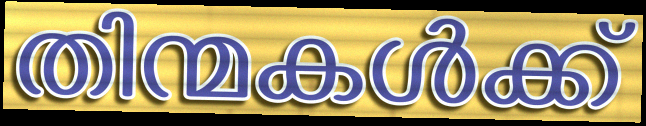
തിന്മകൾക്ക്